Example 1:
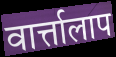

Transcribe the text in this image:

वार्त्तालाप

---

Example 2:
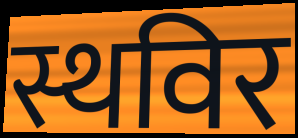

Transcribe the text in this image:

स्थविर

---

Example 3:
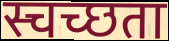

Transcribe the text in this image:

स्चच्छता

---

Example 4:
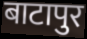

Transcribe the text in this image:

बाटापुर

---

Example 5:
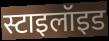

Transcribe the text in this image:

स्टाइलॉइड